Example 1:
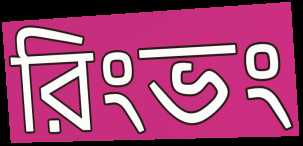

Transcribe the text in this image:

রিংভং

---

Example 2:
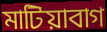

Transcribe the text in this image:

মাটিয়াবাগ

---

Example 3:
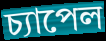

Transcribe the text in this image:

চ্যাপেল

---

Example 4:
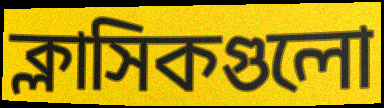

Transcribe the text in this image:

ক্লাসিকগুলো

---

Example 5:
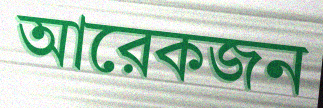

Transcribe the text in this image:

আরেকজন